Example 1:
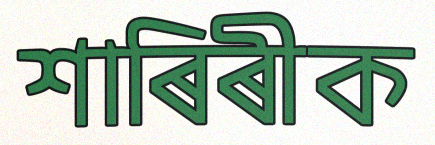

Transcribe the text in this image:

শাৰিৰীক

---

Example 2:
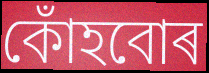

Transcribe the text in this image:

কোঁহবোৰ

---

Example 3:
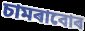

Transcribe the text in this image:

চামৰাবোৰ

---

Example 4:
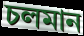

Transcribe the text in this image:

চলমান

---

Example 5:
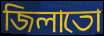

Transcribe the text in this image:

জিলাতো